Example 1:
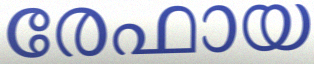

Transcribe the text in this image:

രേഫായ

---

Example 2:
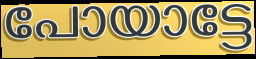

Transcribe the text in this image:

പോയാട്ടേ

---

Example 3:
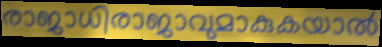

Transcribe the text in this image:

രാജാധിരാജാവുമാകുകയാൽ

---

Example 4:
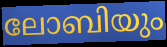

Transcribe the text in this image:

ലോബിയും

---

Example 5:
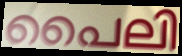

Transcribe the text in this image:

പൈലി